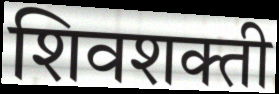
शिवशक्ती